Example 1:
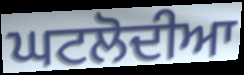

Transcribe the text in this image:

ਘਟਲੋਦੀਆ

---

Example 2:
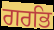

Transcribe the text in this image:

ਗਰਭਿ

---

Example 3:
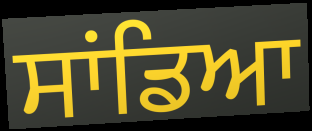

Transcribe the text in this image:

ਸਾਂਡਿਆ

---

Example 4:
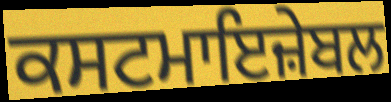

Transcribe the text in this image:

ਕਸਟਮਾਇਜ਼ੇਬਲ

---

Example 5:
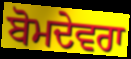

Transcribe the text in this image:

ਬੋਮਦੇਵਰਾ